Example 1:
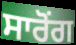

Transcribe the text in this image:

ਸਾਰੋਂਗ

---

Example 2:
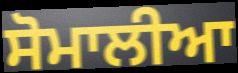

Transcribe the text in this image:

ਸੋਮਾਲੀਆ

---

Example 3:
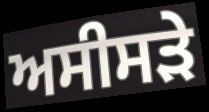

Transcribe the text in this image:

ਅਸੀਸੜੇ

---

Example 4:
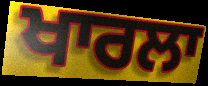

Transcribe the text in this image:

ਖਾਰਲਾ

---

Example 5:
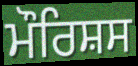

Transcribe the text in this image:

ਮੌਰਿਸ਼ਸ